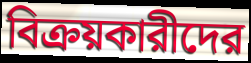
বিক্রয়কারীদের